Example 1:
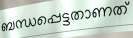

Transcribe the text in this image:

ബന്ധപ്പെട്ടതാണത്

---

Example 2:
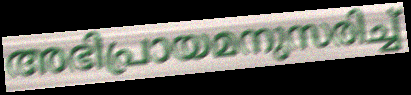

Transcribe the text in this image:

അഭിപ്രായമനുസരിച്ച്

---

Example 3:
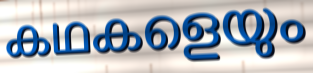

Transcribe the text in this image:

കഥകളെയും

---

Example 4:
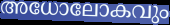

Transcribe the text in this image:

അധോലോകവും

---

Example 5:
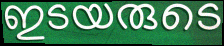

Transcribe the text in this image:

ഇടയരുടെ